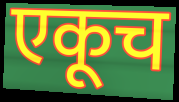
एकूच